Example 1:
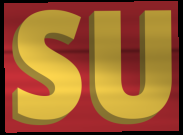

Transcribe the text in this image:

SU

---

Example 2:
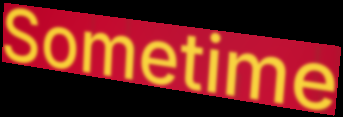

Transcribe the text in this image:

Sometime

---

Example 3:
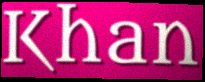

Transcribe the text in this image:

Khan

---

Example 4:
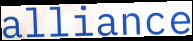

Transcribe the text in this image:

alliance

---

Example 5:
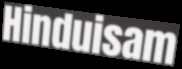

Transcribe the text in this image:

Hinduisam